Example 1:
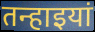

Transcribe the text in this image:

तन्हाइयां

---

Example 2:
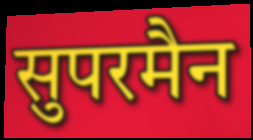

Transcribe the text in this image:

सुपरमैन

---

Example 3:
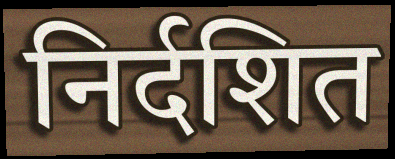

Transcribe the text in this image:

निर्दशित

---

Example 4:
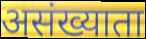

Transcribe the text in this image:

असंख्याता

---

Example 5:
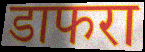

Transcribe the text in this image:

डाफरा